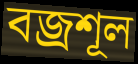
বজ্রশূল